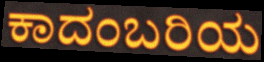
ಕಾದಂಬರಿಯ